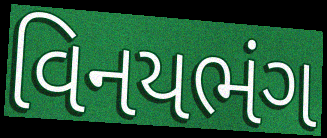
વિનયભંગ